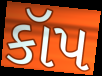
કૉપ